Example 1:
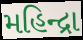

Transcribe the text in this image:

મહિન્દ્રા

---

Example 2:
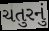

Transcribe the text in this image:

ચતુરનું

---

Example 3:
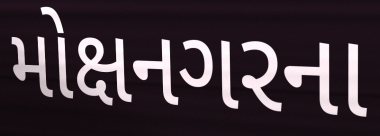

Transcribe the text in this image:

મોક્ષનગરના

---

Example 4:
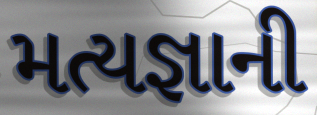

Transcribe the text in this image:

મત્યજ્ઞાની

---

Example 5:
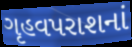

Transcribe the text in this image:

ગૃહવપરાશનાં